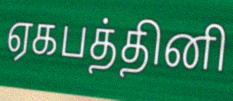
ஏகபத்தினி